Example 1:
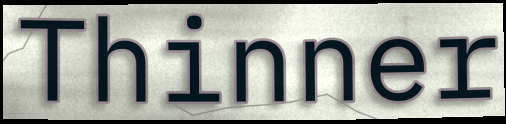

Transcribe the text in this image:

Thinner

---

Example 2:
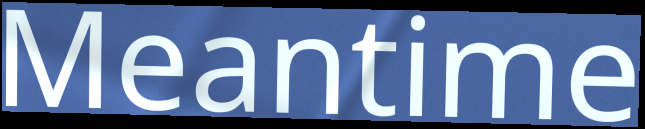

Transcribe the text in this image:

Meantime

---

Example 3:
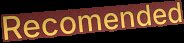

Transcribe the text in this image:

Recomended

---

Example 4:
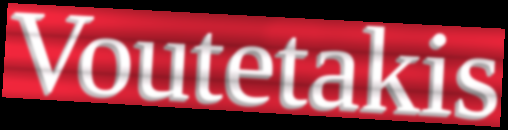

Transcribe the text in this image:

Voutetakis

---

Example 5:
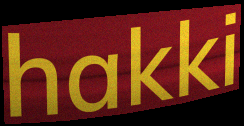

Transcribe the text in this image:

hakki